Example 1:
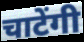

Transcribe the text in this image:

चाटेंगी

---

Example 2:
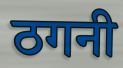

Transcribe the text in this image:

ठगनी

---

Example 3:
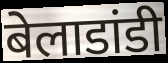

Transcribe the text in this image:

बेलाडांडी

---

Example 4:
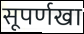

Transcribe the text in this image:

सूपर्णखा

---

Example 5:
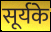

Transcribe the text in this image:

सूर्यके